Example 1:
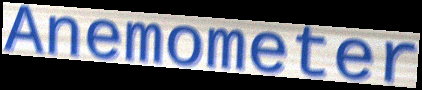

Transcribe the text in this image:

Anemometer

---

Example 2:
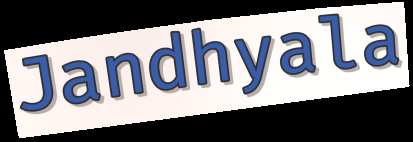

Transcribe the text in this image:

Jandhyala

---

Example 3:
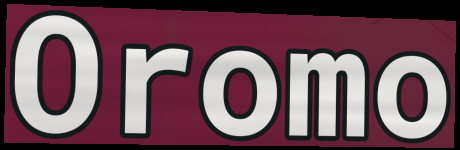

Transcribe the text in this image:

Oromo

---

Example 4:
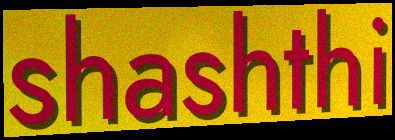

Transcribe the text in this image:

shashthi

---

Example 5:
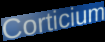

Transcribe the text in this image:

Corticium